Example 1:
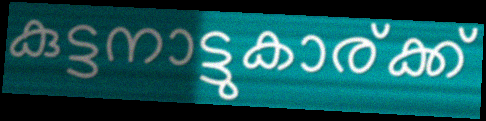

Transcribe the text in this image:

കുട്ടനാട്ടുകാര്ക്ക്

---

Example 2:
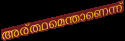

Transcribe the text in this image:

അര്ത്ഥമെന്താണെന്ന്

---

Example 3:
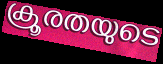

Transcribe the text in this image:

ക്രൂരതയുടെ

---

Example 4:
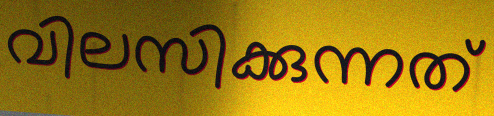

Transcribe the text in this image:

വിലസിക്കുന്നത്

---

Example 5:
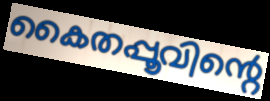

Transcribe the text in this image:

കൈതപ്പൂവിന്റെ